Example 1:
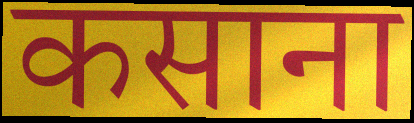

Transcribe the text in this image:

कसाना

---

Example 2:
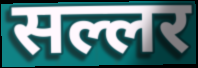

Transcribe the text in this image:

सल्लर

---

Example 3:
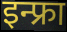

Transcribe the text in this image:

इन्फ्रा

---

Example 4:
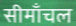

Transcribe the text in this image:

सीमाँचल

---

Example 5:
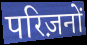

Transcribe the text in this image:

परिज़नों